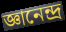
জ্ঞানেন্দ্র